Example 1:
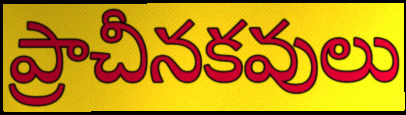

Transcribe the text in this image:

ప్రాచీనకవులు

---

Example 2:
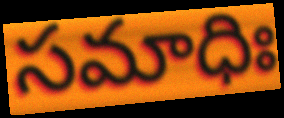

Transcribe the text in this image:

సమాధిః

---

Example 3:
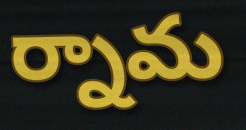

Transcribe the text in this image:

ర్నామ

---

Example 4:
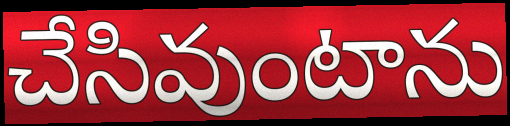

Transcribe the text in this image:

చేసివుంటాను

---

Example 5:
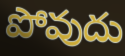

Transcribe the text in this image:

పోవుదు